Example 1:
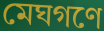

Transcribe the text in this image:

মেঘগণে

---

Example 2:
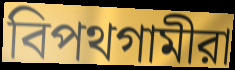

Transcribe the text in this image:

বিপথগামীরা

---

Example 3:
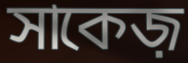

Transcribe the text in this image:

সাকেজ়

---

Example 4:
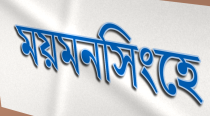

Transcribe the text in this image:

ময়মনসিংহে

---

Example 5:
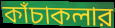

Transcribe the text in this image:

কাঁচাকলার